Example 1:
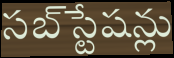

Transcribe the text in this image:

సబ్‌స్టేషన్లు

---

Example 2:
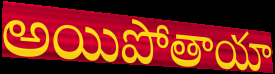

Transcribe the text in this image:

అయిపోతాయా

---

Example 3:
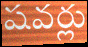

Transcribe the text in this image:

షవర్లు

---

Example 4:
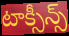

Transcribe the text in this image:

టాక్సీన్స్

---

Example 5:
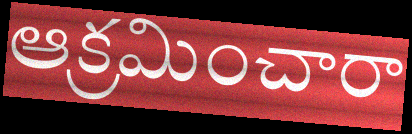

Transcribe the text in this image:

ఆక్రమించారా